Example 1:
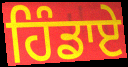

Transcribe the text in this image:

ਹਿੰਡਾਏ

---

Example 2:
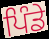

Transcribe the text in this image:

ਪਿੰਡੇ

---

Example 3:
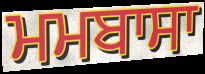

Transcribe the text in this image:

ਮਮਬਾਸਾ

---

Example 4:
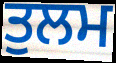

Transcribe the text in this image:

ਤੁਲਮ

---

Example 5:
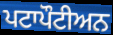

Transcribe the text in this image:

ਪਟਾਪੌਟੀਅਨ